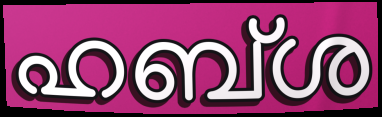
ഹബ്ശ